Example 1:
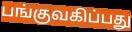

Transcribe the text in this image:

பங்குவகிப்பது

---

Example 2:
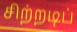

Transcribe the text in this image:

சிற்றடிப்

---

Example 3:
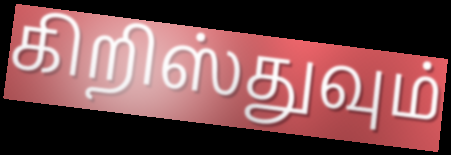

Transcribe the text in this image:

கிறிஸ்துவும்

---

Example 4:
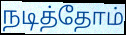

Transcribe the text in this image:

நடித்தோம்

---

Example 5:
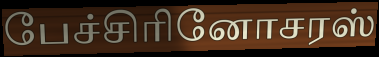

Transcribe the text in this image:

பேச்சிரினோசரஸ்